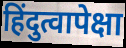
हिंदुत्वापेक्षा